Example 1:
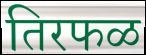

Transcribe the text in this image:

तिरफळ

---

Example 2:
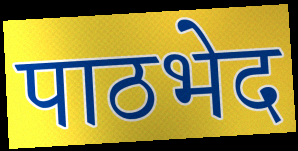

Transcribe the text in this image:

पाठभेद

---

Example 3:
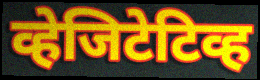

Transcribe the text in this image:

व्हेजिटेटिव्ह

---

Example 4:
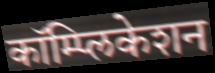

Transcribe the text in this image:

कॉम्प्लिकेशन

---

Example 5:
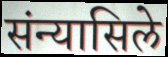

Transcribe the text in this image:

संन्यासिले